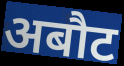
अबौट